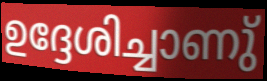
ഉദ്ദേശിച്ചാണു്